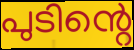
പുടിന്റെ